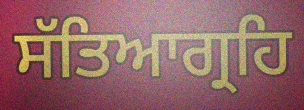
ਸੱਤਿਆਗ੍ਰਹਿ